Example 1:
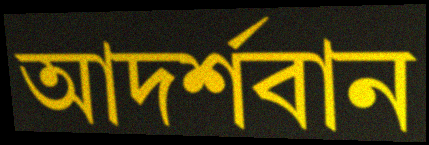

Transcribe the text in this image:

আদর্শবান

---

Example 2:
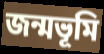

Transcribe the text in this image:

জন্মভূমি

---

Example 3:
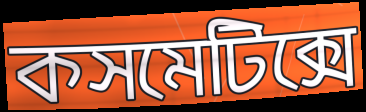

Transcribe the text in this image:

কসমেটিক্সে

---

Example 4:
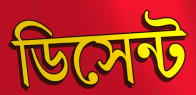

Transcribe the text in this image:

ডিসেন্ট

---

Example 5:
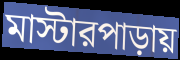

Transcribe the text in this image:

মাস্টারপাড়ায়